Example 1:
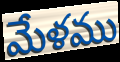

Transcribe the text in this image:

మేళము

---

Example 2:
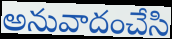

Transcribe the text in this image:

అనువాదంచేసి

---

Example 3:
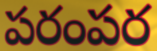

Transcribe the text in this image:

పరంపర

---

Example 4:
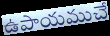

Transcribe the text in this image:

ఉపాయముచే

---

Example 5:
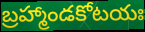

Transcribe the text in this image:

బ్రహ్మాండకోటయః